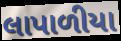
લાપાળીયા